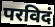
परविदं